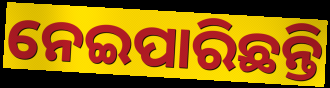
ନେଇପାରିଛନ୍ତି